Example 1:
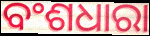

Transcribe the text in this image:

ବଂଶଧାରା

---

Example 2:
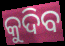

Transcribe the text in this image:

କୁଦିବ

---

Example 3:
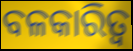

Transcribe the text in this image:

ବଳକାରିତ୍ୱ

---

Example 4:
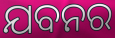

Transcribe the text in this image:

ଯବନର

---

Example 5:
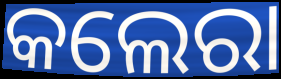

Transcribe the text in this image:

କଲେରା